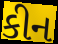
કીન